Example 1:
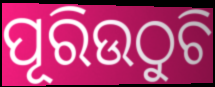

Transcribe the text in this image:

ପୂରିଉଠୁଚି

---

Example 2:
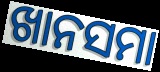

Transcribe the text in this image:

ଖାନସମା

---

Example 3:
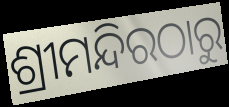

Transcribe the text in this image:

ଶ୍ରୀମନ୍ଦିରଠାରୁ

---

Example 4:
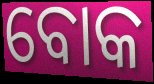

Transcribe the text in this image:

ବୋକ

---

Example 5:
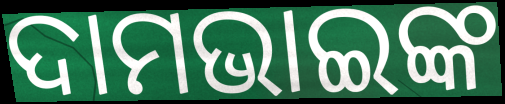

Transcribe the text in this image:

ଦାମଭାଇଙ୍କ